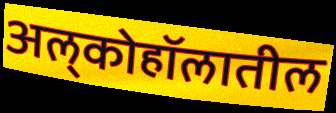
अल्कोहॉलातील